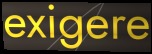
exigere